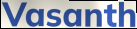
Vasanth